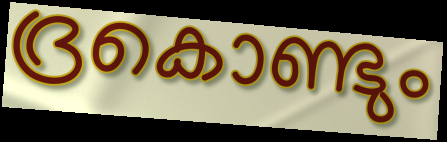
ദ്രകൊണ്ടും